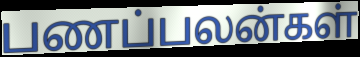
பணப்பலன்கள்